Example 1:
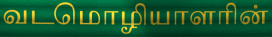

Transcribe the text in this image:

வடமொழியாளரின்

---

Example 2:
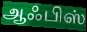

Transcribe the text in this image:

ஆஃபிஸ்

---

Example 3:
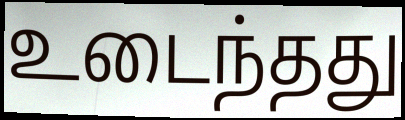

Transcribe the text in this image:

உடைந்தது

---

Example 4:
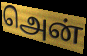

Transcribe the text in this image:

அென்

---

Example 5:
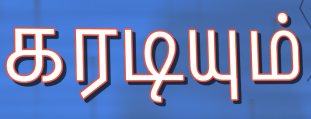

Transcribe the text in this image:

கரடியும்